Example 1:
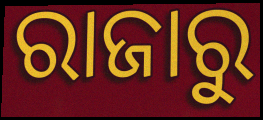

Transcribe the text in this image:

ରାଜାରୁ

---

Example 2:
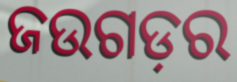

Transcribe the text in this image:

ଜଉଗଡ଼ର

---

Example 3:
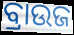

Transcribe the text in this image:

ବ୍ରାଉଜ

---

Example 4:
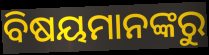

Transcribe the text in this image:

ବିଷୟମାନଙ୍କରୁ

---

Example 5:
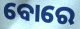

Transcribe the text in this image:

ବୋରେ